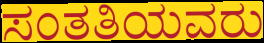
ಸಂತತಿಯವರು